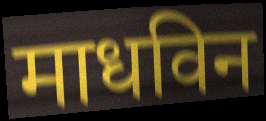
माधविन